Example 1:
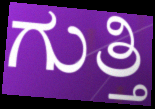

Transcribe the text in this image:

ಗುತ್ತಿ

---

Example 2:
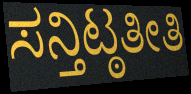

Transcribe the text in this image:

ಸನ್ತಿಟ್ಠತೀತಿ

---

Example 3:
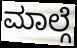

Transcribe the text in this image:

ಮಾಲ್ಗೆ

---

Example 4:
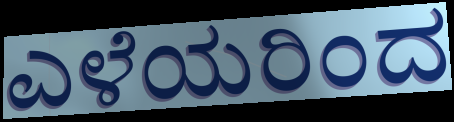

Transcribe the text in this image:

ಎಳೆಯರಿಂದ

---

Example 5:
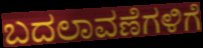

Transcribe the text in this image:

ಬದಲಾವಣೆಗಳಿಗೆ